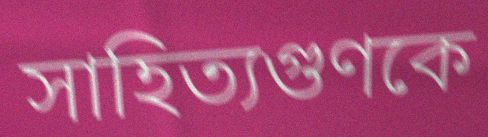
সাহিত্যগুণকে